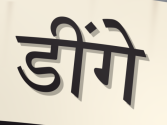
डींगे